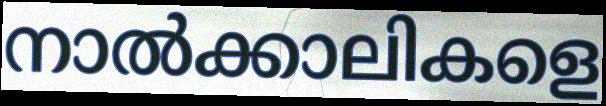
നാൽക്കാലികളെ